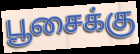
பூசைக்கு